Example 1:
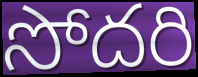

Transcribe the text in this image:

సోదరి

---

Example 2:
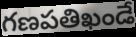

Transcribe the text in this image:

గణపతిఖండే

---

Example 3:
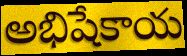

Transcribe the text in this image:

అభిషేకాయ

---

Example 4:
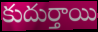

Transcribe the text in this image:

కుదుర్తాయి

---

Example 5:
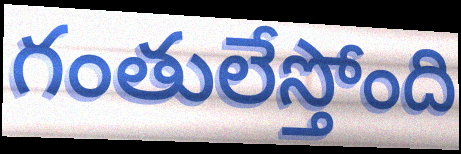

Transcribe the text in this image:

గంతులేస్తోంది